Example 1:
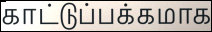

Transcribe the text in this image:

காட்டுப்பக்கமாக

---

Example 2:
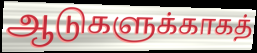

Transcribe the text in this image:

ஆடுகளுக்காகத்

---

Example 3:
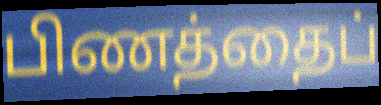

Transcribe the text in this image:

பிணத்தைப்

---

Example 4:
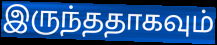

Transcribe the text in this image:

இருந்ததாகவும்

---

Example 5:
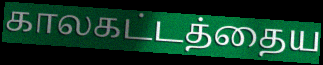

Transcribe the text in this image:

காலகட்டத்தைய